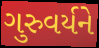
ગુરુવર્યને